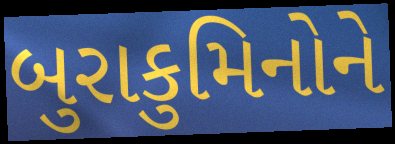
બુરાકુમિનોને